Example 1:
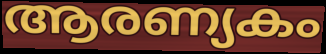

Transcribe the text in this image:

ആരണ്യകം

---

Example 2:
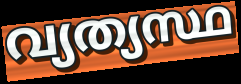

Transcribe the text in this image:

വ്യത്യസ്ഥ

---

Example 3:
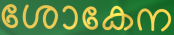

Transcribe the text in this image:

ശോകേന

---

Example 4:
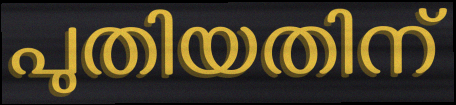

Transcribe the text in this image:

പുതിയതിന്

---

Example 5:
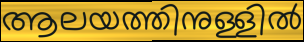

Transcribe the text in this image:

ആലയത്തിനുള്ളിൽ